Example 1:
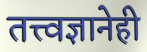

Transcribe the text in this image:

तत्त्वज्ञानेही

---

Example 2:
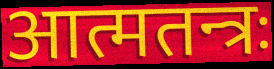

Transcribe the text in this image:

आत्मतन्त्रः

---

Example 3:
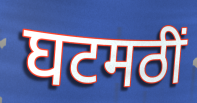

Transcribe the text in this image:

घटमठीं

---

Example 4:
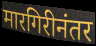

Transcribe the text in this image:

मारगिरीनंतर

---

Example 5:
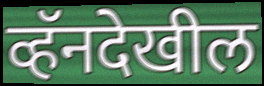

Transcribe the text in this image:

व्हॅनदेखील